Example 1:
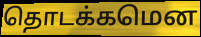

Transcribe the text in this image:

தொடக்கமென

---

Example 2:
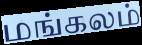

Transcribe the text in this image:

மங்கலம்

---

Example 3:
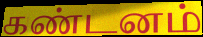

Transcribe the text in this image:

கண்டனம்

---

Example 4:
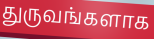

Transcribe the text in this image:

துருவங்களாக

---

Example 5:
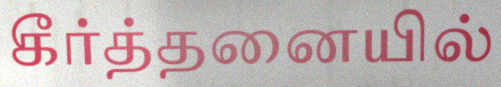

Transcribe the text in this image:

கீர்த்தனையில்